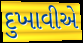
દુખાવીએ